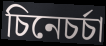
চিনেচৰ্চা